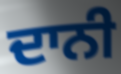
ਦਾਨੀ